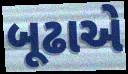
બૂઢાએ